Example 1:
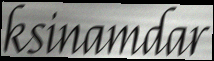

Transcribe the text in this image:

ksinamdar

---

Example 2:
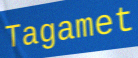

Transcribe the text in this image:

Tagamet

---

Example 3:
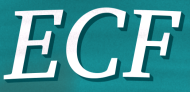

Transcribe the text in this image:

ECF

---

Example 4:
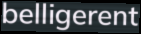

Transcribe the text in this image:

belligerent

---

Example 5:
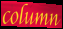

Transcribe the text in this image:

column